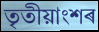
তৃতীয়াংশৰ